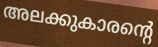
അലക്കുകാരന്റെ